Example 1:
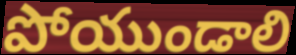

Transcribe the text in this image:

పోయుండాలి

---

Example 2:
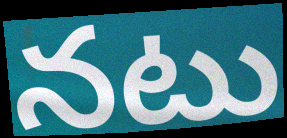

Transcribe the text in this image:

నటు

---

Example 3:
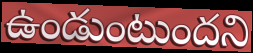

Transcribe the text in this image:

ఉండుంటుందని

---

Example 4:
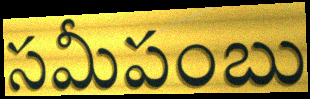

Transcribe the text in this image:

సమీపంబు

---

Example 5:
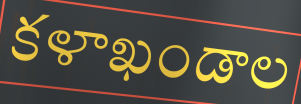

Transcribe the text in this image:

కళాఖండాల